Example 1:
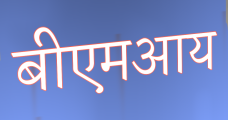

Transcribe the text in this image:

बीएमआय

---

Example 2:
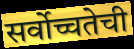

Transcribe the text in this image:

सर्वोच्चतेची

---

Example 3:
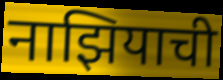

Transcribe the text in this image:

नाझियाची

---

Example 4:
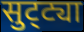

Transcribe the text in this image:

सुट्ट्या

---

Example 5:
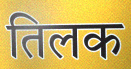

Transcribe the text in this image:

तिलक